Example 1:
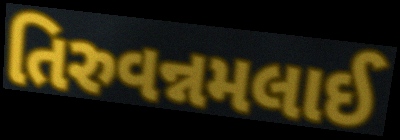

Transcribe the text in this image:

તિરુવન્નમલાઈ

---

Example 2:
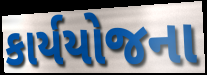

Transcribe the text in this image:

કાર્યયોજના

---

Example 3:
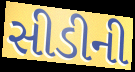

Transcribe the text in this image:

સીડીની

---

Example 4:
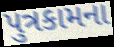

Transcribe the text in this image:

પુત્રકામના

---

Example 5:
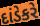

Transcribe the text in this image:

દાંડેકરે